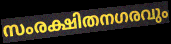
സംരക്ഷിതനഗരവും